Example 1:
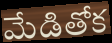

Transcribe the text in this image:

మేడితోక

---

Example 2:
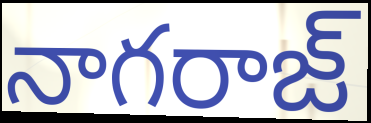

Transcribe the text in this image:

నాగరాజ్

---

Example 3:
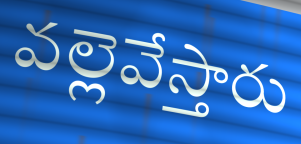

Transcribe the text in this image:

వల్లెవేస్తారు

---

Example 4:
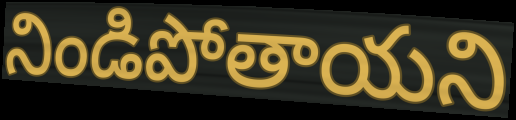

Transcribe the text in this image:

నిండిపోతాయని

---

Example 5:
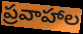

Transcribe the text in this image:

ప్రవాహాల